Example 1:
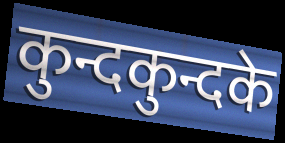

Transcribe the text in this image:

कुन्दकुन्दके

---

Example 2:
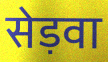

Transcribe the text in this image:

सेड़वा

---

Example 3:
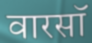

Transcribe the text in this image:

वारसॉ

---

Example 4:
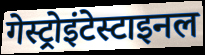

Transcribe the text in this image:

गेस्ट्रोइंटेस्टाइनल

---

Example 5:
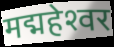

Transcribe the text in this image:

मद्महेश्वर